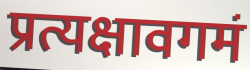
प्रत्यक्षावगमं